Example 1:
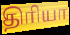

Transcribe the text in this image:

திரியா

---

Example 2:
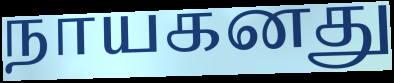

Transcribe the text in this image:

நாயகனது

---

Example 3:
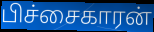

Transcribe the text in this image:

பிச்சைகாரன்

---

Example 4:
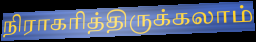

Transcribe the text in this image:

நிராகரித்திருக்கலாம்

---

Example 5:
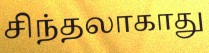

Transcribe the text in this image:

சிந்தலாகாது